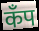
कॅंप